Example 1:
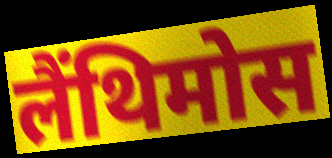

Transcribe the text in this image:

लैंथिमोस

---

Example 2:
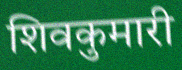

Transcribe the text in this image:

शिवकुमारी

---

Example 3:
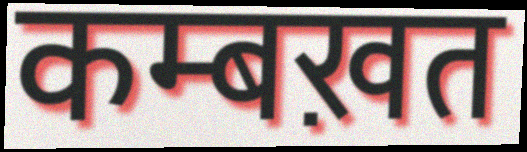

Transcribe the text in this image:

कम्बख़त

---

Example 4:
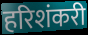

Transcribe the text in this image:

हरिशंकरी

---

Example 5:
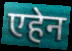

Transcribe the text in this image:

एहेन